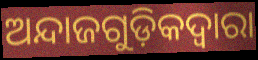
ଅନ୍ଦାଜଗୁଡ଼ିକଦ୍ୱାରା